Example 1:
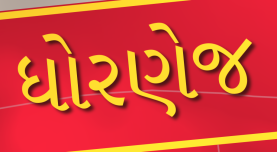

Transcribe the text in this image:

ધોરણેજ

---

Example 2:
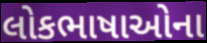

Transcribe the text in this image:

લોકભાષાઓના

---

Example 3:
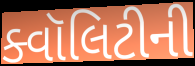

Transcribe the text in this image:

ક્વૉલિટીની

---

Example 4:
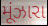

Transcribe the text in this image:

મૂંઝારા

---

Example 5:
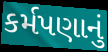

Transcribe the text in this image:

કર્મપણાનું